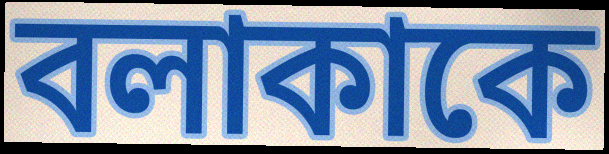
বলাকাকে